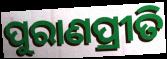
ପୁରାଣପ୍ରୀତି